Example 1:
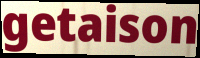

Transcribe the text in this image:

getaison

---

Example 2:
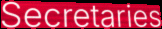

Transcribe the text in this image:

Secretaries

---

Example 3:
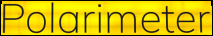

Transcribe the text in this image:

Polarimeter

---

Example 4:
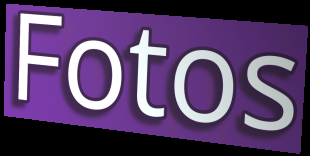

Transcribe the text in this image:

Fotos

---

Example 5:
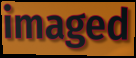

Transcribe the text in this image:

imaged